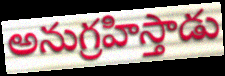
అనుగ్రహిస్తాడు